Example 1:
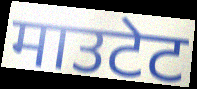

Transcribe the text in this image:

माउटेट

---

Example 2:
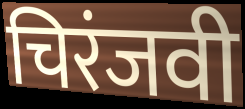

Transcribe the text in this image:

चिरंजवी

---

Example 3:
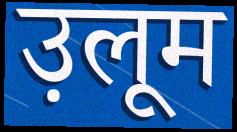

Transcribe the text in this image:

उ़लूम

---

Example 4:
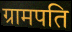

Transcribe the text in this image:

ग्रामपति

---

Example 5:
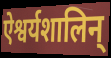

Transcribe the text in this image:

ऐश्वर्यशालिन्